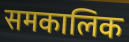
समकालिक